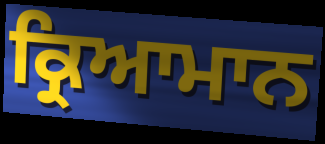
ਕ੍ਰਿਆਮਾਨ